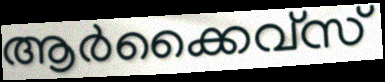
ആർക്കൈവ്സ്